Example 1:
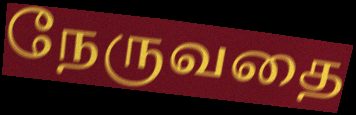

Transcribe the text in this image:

நேருவதை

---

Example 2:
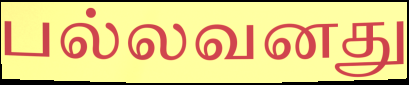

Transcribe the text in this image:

பல்லவனது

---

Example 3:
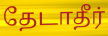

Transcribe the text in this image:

தேடாதீர்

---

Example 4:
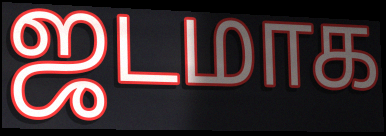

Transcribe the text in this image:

ஜடமாக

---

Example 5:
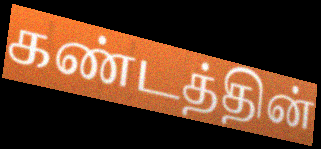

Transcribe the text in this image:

கண்டத்தின்